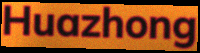
Huazhong